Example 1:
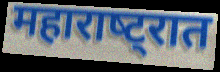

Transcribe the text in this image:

महाराष्‍ट्रात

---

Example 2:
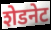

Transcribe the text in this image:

शेडनेट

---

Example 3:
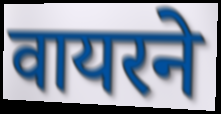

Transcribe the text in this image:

वायरने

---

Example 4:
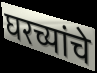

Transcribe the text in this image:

घरच्यांचे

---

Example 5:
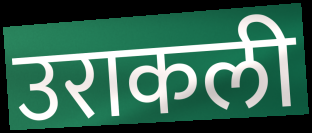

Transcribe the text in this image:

उराकली